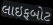
લાઇફબોટ